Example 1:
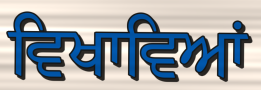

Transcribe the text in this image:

ਵਿਖਾਵਿਆਂ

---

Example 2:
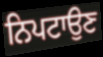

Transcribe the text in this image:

ਨਿਪਟਾਉਣ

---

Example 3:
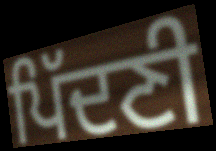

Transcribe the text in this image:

ਪਿੱਦਣੀ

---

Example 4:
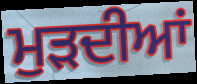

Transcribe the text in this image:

ਮੁੜਦੀਆਂ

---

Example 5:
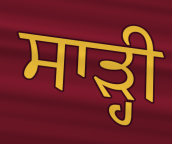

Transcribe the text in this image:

ਸਾੜ੍ਹੀ